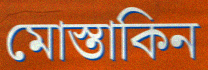
মোস্তাকিন